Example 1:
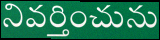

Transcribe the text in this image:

నివర్తించును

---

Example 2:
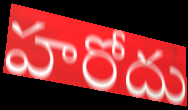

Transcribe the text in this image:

హరోదు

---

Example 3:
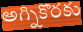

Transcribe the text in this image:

అగ్నికొరకు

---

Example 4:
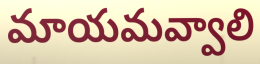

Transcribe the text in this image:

మాయమవ్వాలి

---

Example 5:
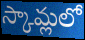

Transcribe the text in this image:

స్కామ్లలో